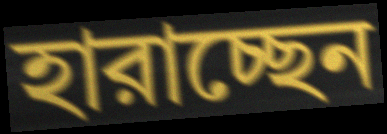
হারাচ্ছেন